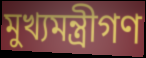
মুখ্যমন্ত্রীগণ